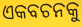
ଏକବଚନକୁ